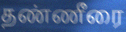
தண்ணீரை